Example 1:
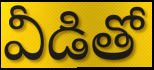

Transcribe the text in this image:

వీడితో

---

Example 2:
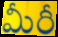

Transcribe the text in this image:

మీరీ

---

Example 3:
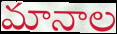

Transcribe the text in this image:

మానాల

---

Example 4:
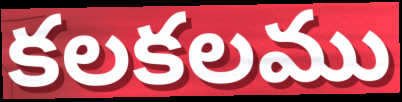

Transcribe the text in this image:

కలకలము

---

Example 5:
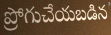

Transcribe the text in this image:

ప్రోగుచేయబడిన